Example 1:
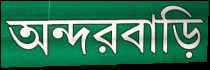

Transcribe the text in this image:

অন্দরবাড়ি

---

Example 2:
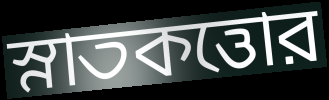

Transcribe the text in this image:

স্নাতকত্তোর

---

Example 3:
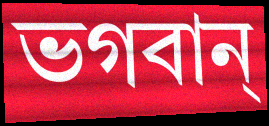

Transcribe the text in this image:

ভগবান্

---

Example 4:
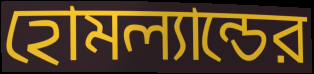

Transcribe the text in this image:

হোমল্যান্ডের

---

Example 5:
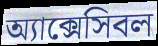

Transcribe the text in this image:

অ্যাক্সেসিবল